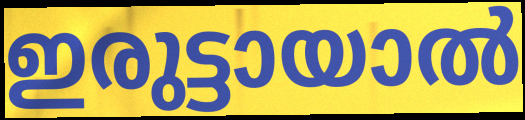
ഇരുട്ടായാൽ